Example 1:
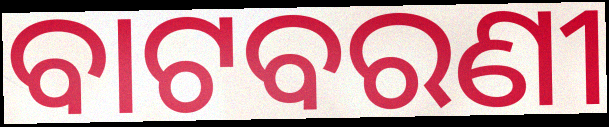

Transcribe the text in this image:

ବାଟବରଣୀ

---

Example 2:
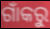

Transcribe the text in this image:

ଗାଁକରୁ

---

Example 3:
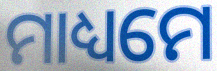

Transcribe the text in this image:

ମାଧ୍ୟମେ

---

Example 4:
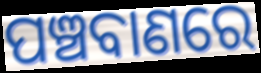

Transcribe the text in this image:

ପଞ୍ଚବାଣରେ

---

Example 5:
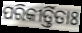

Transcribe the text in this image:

ପରିକୀର୍ତ୍ତିତାଃ